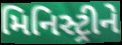
મિનિસ્ટ્રીને